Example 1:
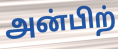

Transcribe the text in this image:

அன்பிற்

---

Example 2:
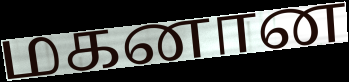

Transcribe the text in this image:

மகனான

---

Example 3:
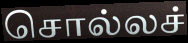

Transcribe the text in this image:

சொல்லச்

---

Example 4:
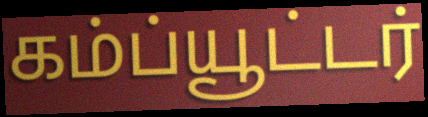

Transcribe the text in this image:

கம்ப்யூட்டர்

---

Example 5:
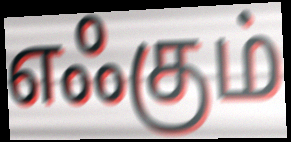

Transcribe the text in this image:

எஃகும்